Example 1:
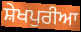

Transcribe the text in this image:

ਸ਼ੇਖਪੁਰੀਆ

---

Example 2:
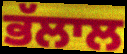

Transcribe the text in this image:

ਭੱਲਾਲ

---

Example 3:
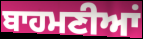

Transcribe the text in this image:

ਬਾਹਮਣੀਆਂ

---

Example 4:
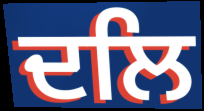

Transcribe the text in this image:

ਦਲਿ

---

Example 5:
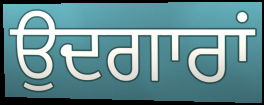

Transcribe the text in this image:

ਉਦਗਾਰਾਂ